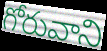
గోరువాని